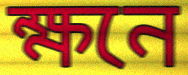
ক্ষনে